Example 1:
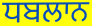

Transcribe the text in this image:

ਧਬਲਾਨ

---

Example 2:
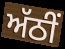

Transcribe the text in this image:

ਅੱਠੀਂ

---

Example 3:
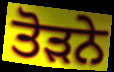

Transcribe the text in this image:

ਤੋੜਨੇ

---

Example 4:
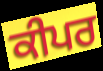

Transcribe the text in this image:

ਕੀਪਰ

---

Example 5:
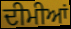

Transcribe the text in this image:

ਦੀਮੀਆਂ